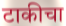
टाकीचा